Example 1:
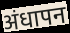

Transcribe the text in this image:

अंधापन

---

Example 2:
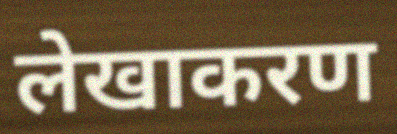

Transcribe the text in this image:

लेखाकरण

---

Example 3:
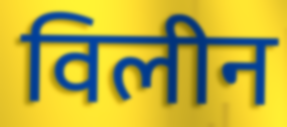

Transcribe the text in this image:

विलीन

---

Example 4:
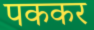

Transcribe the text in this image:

पककर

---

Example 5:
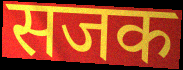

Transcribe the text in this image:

सजक